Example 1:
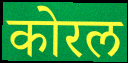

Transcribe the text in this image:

कोरल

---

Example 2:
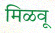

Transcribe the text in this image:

मिळवू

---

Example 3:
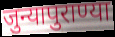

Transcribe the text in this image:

जुन्यापुराण्या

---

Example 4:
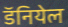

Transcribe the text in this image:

डॅनियेल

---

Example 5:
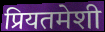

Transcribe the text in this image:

प्रियतमेशी